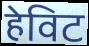
हेविट